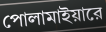
পোলামাইয়ারে